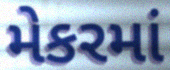
મેકરમાં